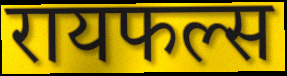
रायफल्स